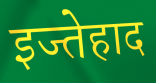
इज्तेहाद